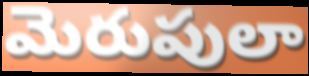
మెరుపులా